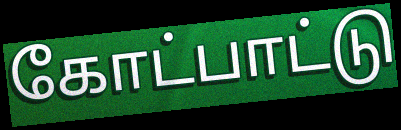
கோட்பாட்டு